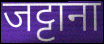
जट्टाना